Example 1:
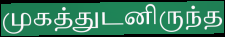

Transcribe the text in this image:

முகத்துடனிருந்த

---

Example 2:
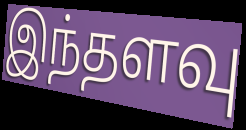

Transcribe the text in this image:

இந்தளவு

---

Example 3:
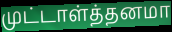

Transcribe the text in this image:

முட்டாள்த்தனமா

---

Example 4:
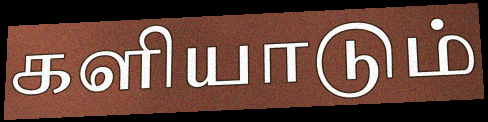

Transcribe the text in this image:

களியாடும்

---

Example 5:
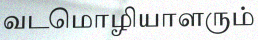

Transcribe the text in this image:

வடமொழியாளரும்